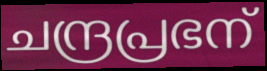
ചന്ദ്രപ്രഭന്